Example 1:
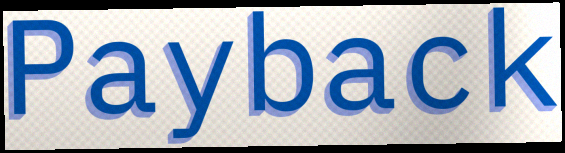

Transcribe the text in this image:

Payback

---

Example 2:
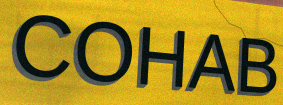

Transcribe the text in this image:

COHAB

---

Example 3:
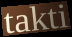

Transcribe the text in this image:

takti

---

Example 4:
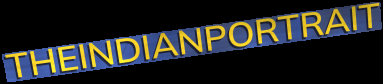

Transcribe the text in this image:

THEINDIANPORTRAIT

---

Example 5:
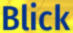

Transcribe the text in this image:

Blick